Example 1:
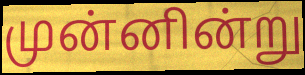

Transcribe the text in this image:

முன்னின்று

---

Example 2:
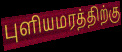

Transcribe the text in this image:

புளியமரத்திற்கு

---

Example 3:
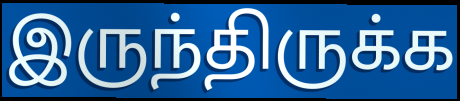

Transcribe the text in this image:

இருந்திருக்க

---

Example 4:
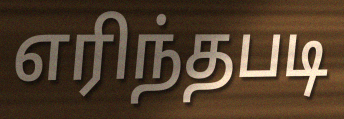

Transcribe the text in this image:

எரிந்தபடி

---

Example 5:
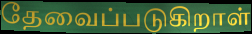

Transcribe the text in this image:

தேவைப்படுகிறாள்